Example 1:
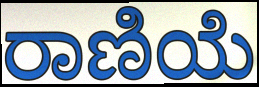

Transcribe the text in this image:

ರಾಣಿಯೆ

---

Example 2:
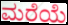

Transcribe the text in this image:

ಮರೆಯೆ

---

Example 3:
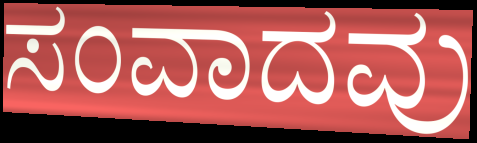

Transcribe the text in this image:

ಸಂವಾದವು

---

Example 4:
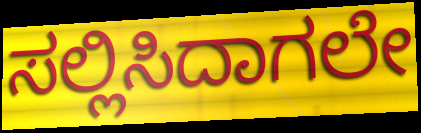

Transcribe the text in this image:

ಸಲ್ಲಿಸಿದಾಗಲೇ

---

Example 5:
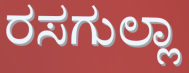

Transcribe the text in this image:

ರಸಗುಲ್ಲಾ